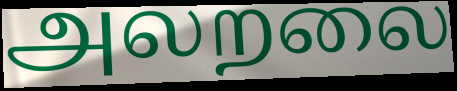
அலறலை